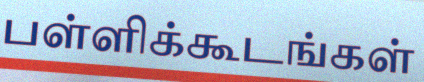
பள்ளிக்கூடங்கள்